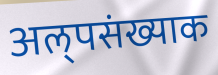
अल्पसंख्याक